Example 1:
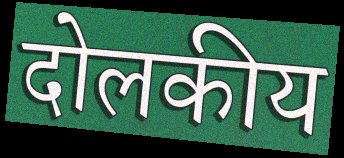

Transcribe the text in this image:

दोलकीय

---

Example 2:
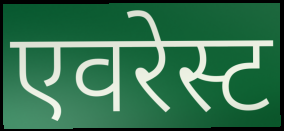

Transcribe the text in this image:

एवरेस्ट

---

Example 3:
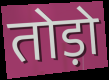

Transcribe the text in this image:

तोड़ो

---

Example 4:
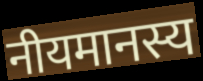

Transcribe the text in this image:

नीयमानस्य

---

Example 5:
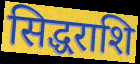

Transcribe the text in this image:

सिद्धराशि